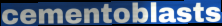
cementoblasts